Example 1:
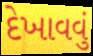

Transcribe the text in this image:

દેખાવવું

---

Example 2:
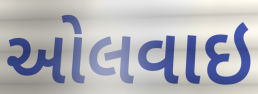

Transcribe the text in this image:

ઓલવાઇ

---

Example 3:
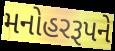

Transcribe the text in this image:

મનોહરરૂપને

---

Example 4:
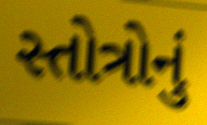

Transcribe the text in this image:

સ્તોત્રોનું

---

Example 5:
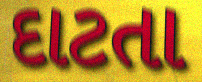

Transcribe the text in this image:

દાટતા